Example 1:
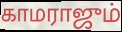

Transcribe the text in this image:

காமராஜும்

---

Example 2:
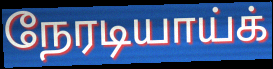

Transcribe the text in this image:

நேரடியாய்க்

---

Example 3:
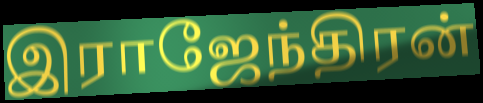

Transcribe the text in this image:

இராஜேந்திரன்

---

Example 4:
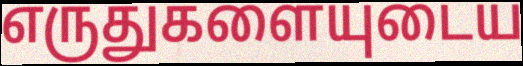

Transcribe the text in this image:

எருதுகளையுடைய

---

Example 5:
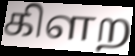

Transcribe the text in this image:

கிளற